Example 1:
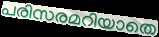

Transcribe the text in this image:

പരിസരമറിയാതെ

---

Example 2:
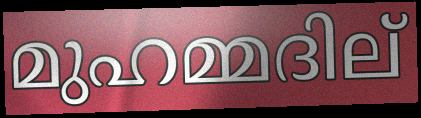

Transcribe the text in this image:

മുഹമ്മദില്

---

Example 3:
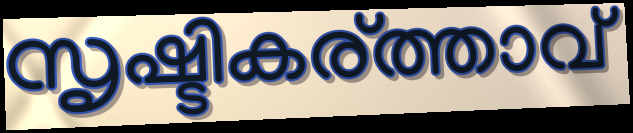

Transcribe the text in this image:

സൃഷ്ടികര്ത്താവ്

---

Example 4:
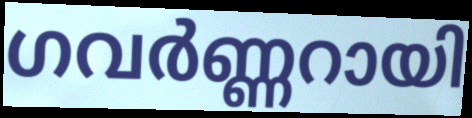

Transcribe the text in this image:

ഗവർണ്ണറായി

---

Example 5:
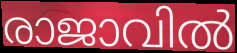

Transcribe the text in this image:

രാജാവിൽ